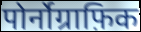
पोर्नोग्राफ़िक